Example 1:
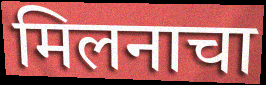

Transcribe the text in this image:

मिलनाचा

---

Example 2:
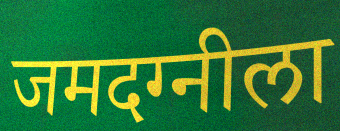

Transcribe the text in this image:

जमदग्नीला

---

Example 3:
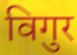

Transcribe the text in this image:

विगुर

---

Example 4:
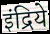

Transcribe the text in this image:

इंद्रिये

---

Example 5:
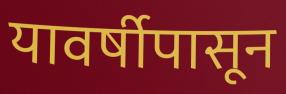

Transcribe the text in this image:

यावर्षीपासून